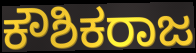
ಕೌಶಿಕರಾಜ